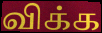
விக்க